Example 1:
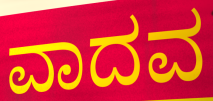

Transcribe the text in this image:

ವಾದವ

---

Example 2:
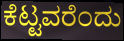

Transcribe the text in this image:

ಕೆಟ್ಟವರೆಂದು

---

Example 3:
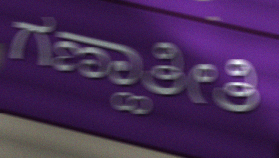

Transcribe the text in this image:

ಗಣ್ಹಾತೀತಿ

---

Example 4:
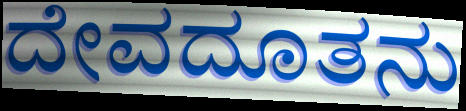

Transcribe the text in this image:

ದೇವದೂತನು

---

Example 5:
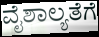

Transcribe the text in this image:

ವೈಶಾಲ್ಯತೆಗೆ